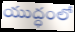
యుద్ధంలో